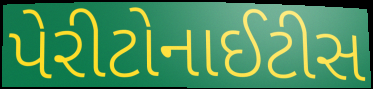
પેરીટોનાઈટીસ